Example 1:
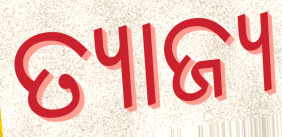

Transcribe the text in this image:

ତ୍ୟାଜ୍ୟ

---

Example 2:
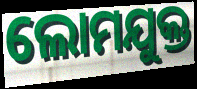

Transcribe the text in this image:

ଲୋମଯୁକ୍ତ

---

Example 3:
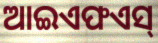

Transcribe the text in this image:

ଆଇଏଫଏସ୍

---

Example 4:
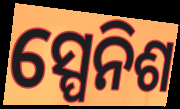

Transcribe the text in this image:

ସ୍ପେନିଶ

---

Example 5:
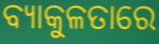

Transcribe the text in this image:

ବ୍ୟାକୁଳତାରେ